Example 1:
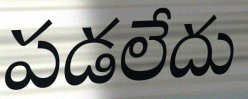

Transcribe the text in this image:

పడలేదు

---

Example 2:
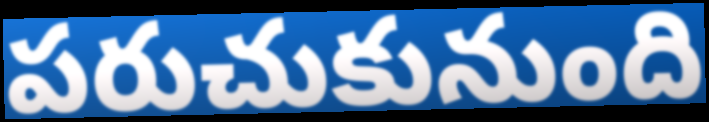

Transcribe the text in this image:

పరుచుకునుంది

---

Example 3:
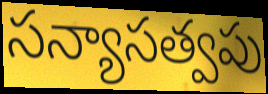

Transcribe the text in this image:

సన్యాసత్వపు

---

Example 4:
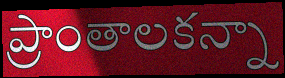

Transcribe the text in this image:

ప్రాంతాలకన్నా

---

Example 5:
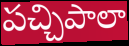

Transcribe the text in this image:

పచ్చిపాలా